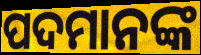
ପଦମାନଙ୍କ